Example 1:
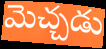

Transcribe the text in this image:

మెచ్చడు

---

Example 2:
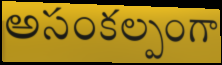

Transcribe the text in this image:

అసంకల్పంగా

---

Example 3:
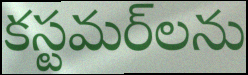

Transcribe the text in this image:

కస్టమర్‌లను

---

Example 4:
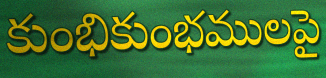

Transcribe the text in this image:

కుంభికుంభములపై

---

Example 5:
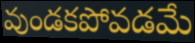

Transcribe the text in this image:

వుండకపోవడమే